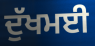
ਦੁੱਖਮਈ